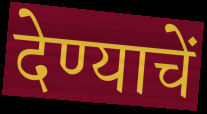
देण्याचें